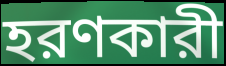
হরণকারী